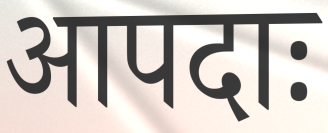
आपदाः